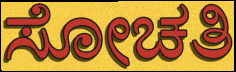
ಸೋಚತಿ